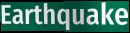
Earthquake